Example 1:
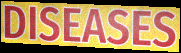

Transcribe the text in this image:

DISEASES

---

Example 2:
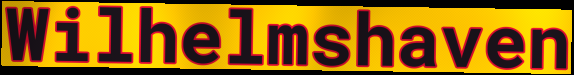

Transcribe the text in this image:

Wilhelmshaven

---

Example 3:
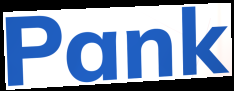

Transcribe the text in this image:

Pank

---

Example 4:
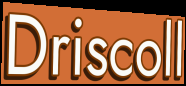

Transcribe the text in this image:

Driscoll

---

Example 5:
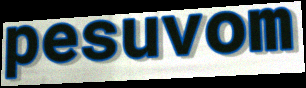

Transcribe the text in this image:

pesuvom